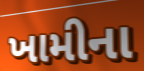
ખામીના